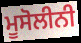
ਮੂਸੋਲੀਨੀ